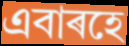
এবাৰহে